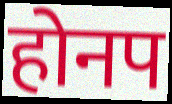
होनप